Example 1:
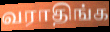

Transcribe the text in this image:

வராதிங்க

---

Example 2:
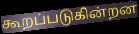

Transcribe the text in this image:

கூறப்படுகின்றன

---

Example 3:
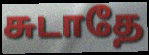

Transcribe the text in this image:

சுடாதே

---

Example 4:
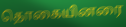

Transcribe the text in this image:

தொகையினரை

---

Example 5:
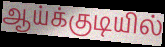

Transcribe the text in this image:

ஆய்க்குடியில்